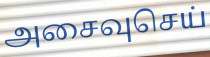
அசைவுசெய்